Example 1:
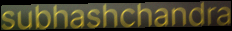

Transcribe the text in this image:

subhashchandra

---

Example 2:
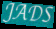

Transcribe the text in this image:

JADS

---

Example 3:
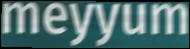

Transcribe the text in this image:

meyyum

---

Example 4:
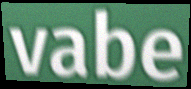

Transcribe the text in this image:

vabe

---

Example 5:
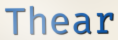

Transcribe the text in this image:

Thear